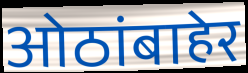
ओठांबाहेर